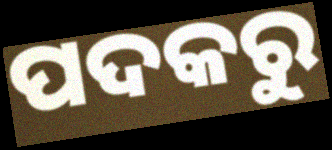
ପଦକରୁ